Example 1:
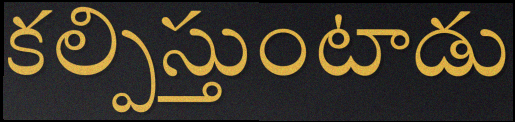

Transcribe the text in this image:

కల్పిస్తుంటాడు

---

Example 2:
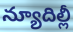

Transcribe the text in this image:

న్యూదిల్లీ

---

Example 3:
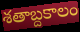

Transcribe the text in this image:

శతాబ్దకాలం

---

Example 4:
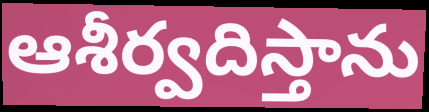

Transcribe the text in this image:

ఆశీర్వదిస్తాను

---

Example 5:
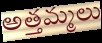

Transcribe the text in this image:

అత్తమ్మలు